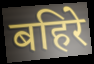
बहिरे